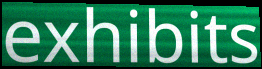
exhibits